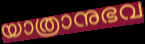
യാത്രാനുഭവ